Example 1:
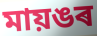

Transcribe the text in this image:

মায়ঙৰ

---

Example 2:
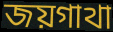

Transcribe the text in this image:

জয়গাথা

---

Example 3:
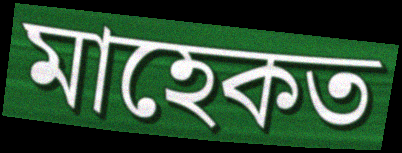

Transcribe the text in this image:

মাহেকত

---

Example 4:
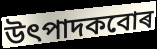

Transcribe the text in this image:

উৎপাদকবোৰ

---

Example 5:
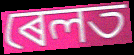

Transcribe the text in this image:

ৰেলত